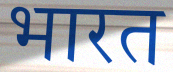
भारत